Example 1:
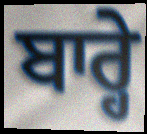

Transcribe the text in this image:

ਬਾਰ੍ਹੇ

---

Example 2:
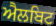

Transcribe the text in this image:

ਐਲਬਿਟ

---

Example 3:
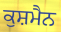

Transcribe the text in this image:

ਕੁਸ਼ਮੈਨ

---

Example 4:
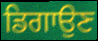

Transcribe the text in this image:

ਡਿਗਾਉਣ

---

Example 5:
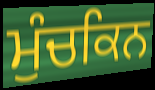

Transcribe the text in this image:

ਮੁੰਚਕਿਨ